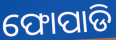
ଫୋପାଡି